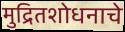
मुद्रितशोधनाचे